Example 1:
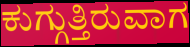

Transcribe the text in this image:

ಕುಗ್ಗುತ್ತಿರುವಾಗ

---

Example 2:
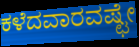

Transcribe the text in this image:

ಕಳೆದವಾರವಷ್ಟೇ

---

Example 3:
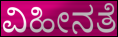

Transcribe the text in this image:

ವಿಹೀನತೆ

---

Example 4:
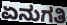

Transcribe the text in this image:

ಏನುಗತಿ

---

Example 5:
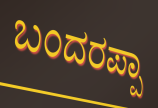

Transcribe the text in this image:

ಬಂದರಪ್ಪಾ